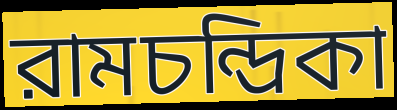
রামচন্দ্রিকা